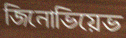
জিনোভিয়েভ